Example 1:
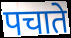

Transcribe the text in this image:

पचाते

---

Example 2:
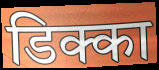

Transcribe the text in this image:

डिक्का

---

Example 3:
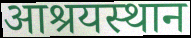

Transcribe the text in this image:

आश्रयस्थान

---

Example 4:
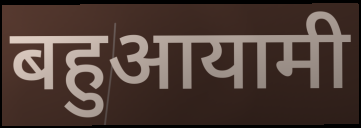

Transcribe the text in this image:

बहुआयामी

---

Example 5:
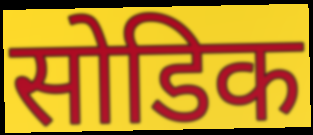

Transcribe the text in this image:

सोडिक